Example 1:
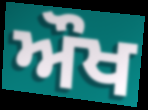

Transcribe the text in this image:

ਔਖ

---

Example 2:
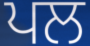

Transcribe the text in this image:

ਪਲ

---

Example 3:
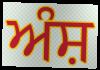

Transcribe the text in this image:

ਅੰਸ਼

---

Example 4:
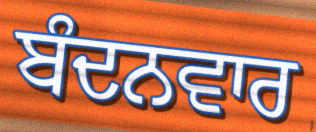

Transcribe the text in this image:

ਬੰਦਨਵਾਰ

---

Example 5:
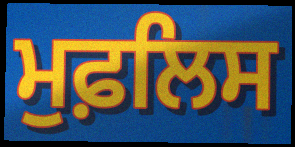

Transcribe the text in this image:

ਮੁਫ਼ਲਿਸ